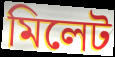
মিলেট